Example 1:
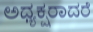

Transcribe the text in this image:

ಅಧ್ಯಕ್ಷರಾದರೆ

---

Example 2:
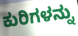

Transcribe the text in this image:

ಕುರಿಗಳನ್ನು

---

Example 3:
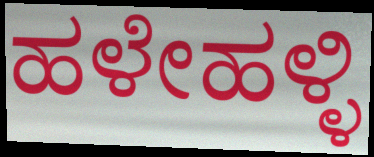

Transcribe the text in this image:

ಹಳೇಹಳ್ಳಿ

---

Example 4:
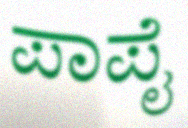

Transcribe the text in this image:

ಪಾಪೈ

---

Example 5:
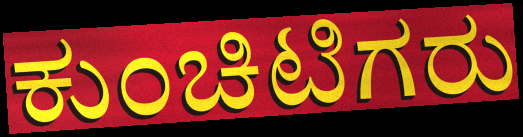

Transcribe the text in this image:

ಕುಂಚಿಟಿಗರು